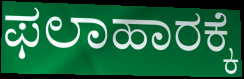
ಫಲಾಹಾರಕ್ಕೆ